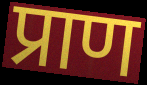
प्राण